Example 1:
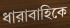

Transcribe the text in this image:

ধারাবাহিকে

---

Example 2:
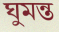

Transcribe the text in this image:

ঘুমন্ত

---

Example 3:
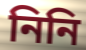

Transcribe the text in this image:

নিনি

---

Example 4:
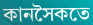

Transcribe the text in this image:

কানসৈকতে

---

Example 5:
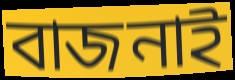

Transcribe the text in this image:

বাজনাই